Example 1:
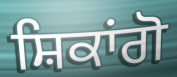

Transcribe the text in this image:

ਸ਼ਿਕਾਂਗੋ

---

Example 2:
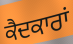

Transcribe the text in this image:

ਕੈਦਕਾਰਾਂ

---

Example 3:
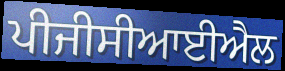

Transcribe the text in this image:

ਪੀਜੀਸੀਆਈਐਲ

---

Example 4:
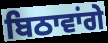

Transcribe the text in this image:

ਬਿਠਾਵਾਂਗੇ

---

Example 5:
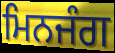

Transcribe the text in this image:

ਮਿਨਜੰਗ